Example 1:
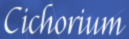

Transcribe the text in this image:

Cichorium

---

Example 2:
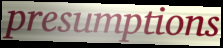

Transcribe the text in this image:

presumptions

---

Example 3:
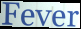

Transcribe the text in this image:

Fever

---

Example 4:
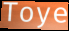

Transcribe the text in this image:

Toye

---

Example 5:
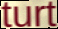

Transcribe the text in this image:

turt